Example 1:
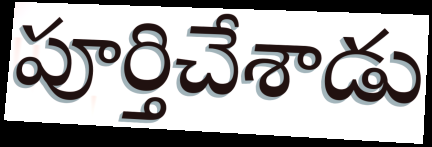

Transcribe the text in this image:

పూర్తిచేశాడు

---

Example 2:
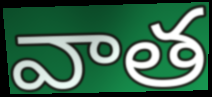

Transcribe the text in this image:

వాత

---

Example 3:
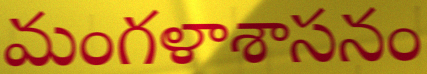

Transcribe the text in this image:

మంగళాశాసనం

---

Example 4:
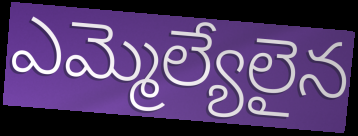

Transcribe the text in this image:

ఎమ్మెల్యేలైన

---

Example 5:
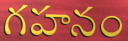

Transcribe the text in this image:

గహనం